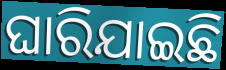
ଘାରିଯାଇଛି